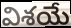
విశయే